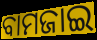
ବାମଜାଇ